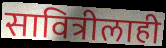
सावित्रीलाही